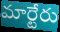
మార్టేరు